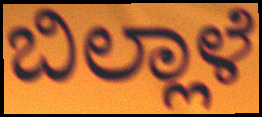
ಬಿಲ್ಲಾಳೆ